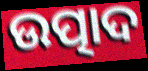
ଉତ୍ପାଦ